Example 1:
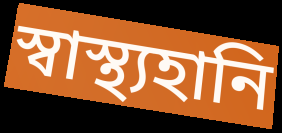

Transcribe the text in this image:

স্বাস্থ্যহানি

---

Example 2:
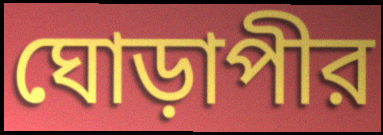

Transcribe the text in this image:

ঘোড়াপীর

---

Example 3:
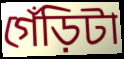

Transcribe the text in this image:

গেঁড়িটা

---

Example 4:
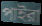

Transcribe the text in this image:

পাইরা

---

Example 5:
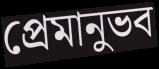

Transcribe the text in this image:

প্রেমানুভব